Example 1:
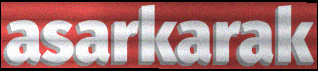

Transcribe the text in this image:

asarkarak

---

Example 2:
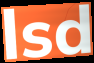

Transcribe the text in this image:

lsd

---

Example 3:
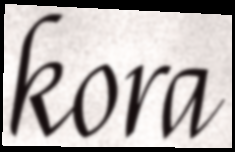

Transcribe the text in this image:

kora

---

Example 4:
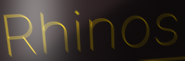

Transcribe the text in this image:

Rhinos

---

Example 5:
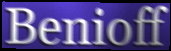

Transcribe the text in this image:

Benioff